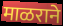
माळराने